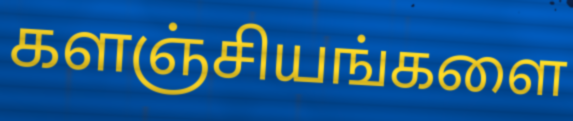
களஞ்சியங்களை